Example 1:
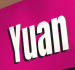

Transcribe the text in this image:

Yuan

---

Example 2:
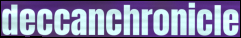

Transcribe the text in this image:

deccanchronicle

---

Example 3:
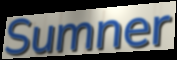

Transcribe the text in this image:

Sumner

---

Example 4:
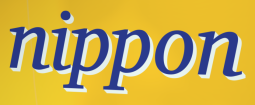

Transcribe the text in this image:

nippon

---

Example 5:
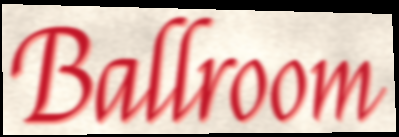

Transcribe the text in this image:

Ballroom